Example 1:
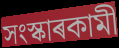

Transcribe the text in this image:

সংস্কাৰকামী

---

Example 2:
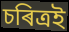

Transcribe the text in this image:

চৰিত্ৰই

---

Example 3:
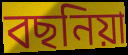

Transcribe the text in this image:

বছনিয়া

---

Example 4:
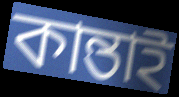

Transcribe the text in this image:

কান্তাই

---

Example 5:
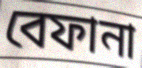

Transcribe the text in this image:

বেফানা